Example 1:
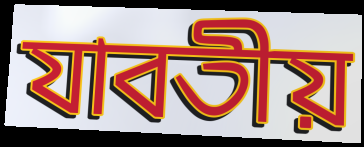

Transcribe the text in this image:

যাবতীয়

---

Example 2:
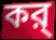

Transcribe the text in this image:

কর্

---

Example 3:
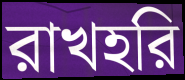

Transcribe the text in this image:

রাখহরি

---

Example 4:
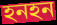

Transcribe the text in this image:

হনহন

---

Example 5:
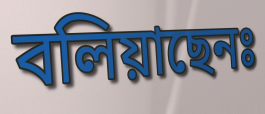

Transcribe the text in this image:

বলিয়াছেনঃ